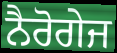
ਨੈਰੋਗੇਜ